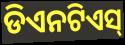
ଡିଏନଟିଏସ୍